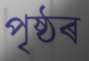
পৃষ্ঠৰ